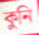
কুনি